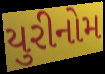
યુરીનોમ